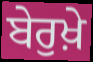
ਬੇਰੁਖ਼ੇ